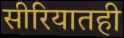
सीरियातही